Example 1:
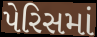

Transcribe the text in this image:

પેરિસમાં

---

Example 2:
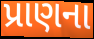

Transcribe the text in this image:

પ્રાણના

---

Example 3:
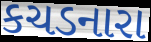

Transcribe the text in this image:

કચડનારા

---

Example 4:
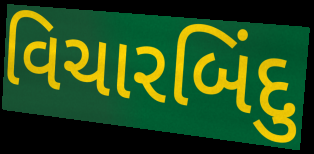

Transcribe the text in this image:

વિચારબિંદુ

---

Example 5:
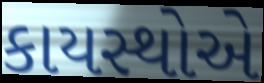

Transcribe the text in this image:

કાયસ્થોએ